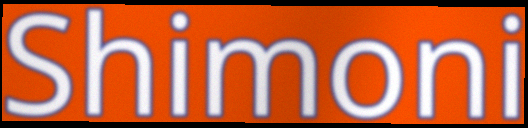
Shimoni